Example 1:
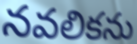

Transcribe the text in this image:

నవలికను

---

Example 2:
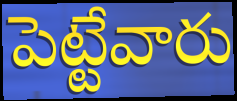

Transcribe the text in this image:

పెట్టేవారు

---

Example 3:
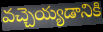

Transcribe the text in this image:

వచ్చెయ్యడానికి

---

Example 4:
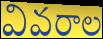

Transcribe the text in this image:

వివరాల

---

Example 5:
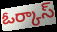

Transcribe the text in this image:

ఓర్కాస్